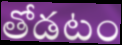
తోడటం